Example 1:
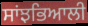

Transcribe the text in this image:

ਸਾਂਝਭਿਆਲੀ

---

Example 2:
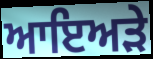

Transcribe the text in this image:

ਆਇਅੜੇ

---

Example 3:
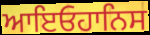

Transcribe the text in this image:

ਆਇਓਹਾਨਿਸ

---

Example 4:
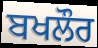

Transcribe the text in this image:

ਬਖਲੌਰ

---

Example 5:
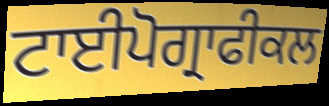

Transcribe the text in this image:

ਟਾਈਪੋਗ੍ਰਾਫੀਕਲ